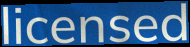
licensed